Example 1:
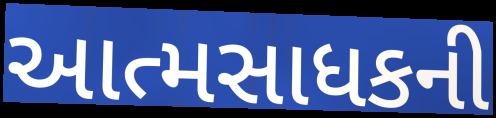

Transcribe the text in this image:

આત્મસાધકની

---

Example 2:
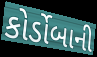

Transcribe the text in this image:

કોર્ડોબાની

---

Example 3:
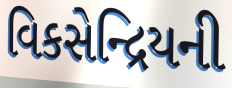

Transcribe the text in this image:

વિકસેન્દ્રિયની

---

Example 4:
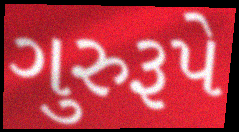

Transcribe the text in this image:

ગુરુરૂપે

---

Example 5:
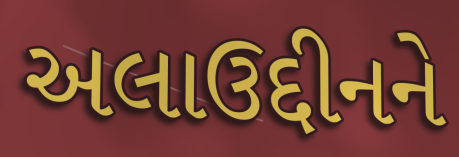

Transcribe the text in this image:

અલાઉદ્દીનને